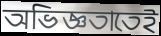
অভিজ্ঞতাতেই